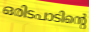
ഒരിടപാടിന്റെ